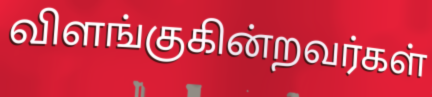
விளங்குகின்றவர்கள்